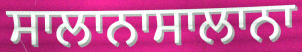
ਸਾਲਾਨਾਸਾਲਾਨਾ